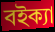
বইক্যা